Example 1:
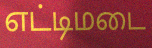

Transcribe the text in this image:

எட்டிமடை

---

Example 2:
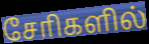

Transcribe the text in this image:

சேரிகளில்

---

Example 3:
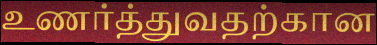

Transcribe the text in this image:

உணர்த்துவதற்கான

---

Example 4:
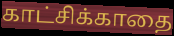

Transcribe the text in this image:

காட்சிக்காதை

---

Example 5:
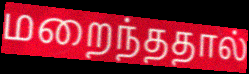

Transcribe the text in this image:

மறைந்ததால்